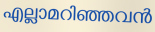
എല്ലാമറിഞ്ഞവൻ